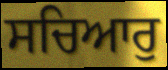
ਸਚਿਆਰੁ